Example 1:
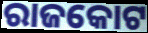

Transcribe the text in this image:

ରାଜକୋଟ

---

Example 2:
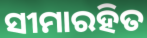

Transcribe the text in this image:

ସୀମାରହିତ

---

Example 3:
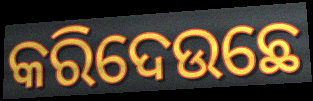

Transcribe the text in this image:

କରିଦେଉଛେ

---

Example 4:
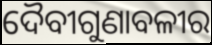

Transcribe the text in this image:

ଦୈବୀଗୁଣାବଳୀର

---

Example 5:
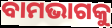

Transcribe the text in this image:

ବାମଭାଗକୁ